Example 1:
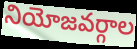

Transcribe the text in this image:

నియోజవర్గాల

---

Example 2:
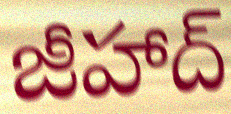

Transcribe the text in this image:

జీహాద్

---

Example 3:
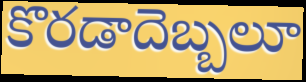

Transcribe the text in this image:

కొరడాదెబ్బలూ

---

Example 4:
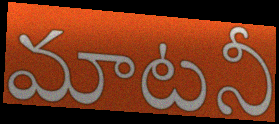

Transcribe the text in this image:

మాటనీ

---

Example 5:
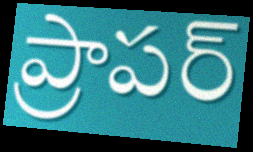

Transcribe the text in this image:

ప్రాపర్